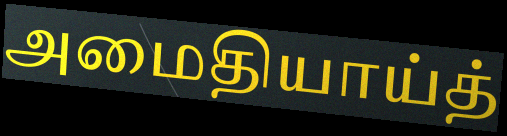
அமைதியாய்த்